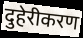
दुहेरीकरण